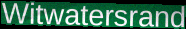
Witwatersrand